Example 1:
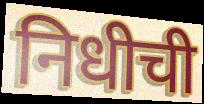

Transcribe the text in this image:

निधीची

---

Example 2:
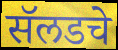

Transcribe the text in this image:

सॅलडचे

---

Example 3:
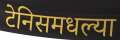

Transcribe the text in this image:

टेनिसमधल्या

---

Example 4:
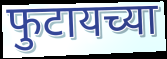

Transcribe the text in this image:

फुटायच्या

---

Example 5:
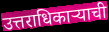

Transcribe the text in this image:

उत्तराधिकाऱ्याची